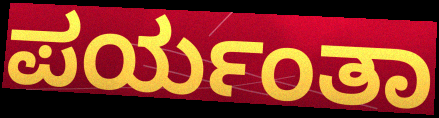
ಪರ್ಯಂತಾ